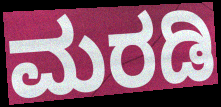
ಮರಡಿ